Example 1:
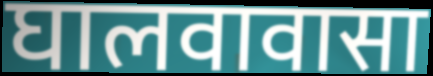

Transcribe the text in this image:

घालवावासा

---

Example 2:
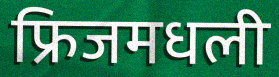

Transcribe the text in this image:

फ्रिजमधली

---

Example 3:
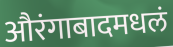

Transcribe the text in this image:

औरंगाबादमधलं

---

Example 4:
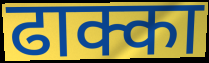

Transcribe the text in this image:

ढाक्का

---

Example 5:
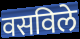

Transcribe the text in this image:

वसविले